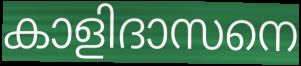
കാളിദാസനെ